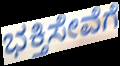
ಭಕ್ತಿಸೇವೆಗೆ